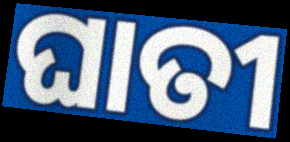
ଘାତୀ